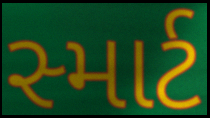
સ્માર્ટ